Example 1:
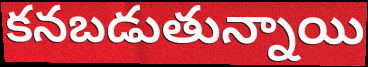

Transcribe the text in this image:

కనబడుతున్నాయి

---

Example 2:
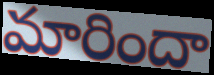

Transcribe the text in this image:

మారిందా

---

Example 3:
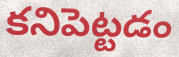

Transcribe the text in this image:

కనిపెట్టడం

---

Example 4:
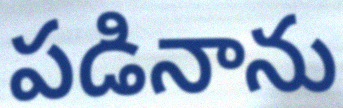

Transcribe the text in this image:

పడినాను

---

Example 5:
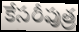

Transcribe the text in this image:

కేసరీపుత్ర